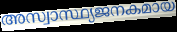
അസ്വാസ്ഥ്യജനകമായ